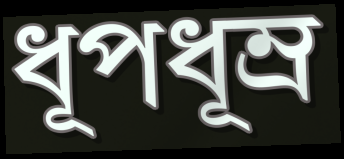
ধূপধূম্র